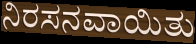
ನಿರಸನವಾಯಿತು